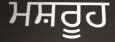
ਮਸ਼ਰੂਹ